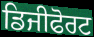
ਡਿਜੀਫੋਰਟ